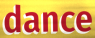
dance